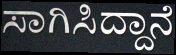
ಸಾಗಿಸಿದ್ದಾನೆ